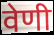
वेणी